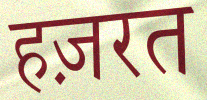
हज़रत